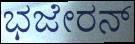
ಭಜೇರನ್